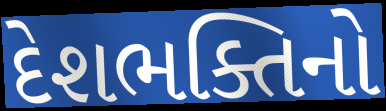
દેશભક્તિનો